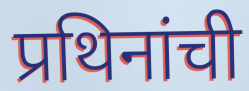
प्रथिनांची